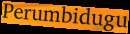
Perumbidugu